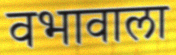
वभावाला